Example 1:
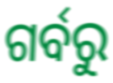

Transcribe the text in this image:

ଗର୍ବରୁ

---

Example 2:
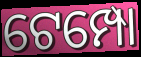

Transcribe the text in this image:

ଟେମ୍ପୋ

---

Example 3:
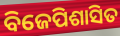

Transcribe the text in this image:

ବିଜେପିଶାସିତ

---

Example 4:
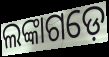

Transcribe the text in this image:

ଲଙ୍କାଗଡ଼େ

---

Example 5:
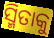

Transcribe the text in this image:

ସ୍ମିତାକୁ